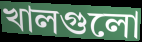
খালগুলো